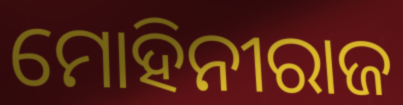
ମୋହିନୀରାଜ